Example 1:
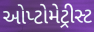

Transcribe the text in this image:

ઓપ્ટોમેટ્રીસ્ટ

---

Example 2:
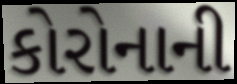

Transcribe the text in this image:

કોરોનાની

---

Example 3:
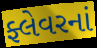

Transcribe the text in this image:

ફ્લેવરનાં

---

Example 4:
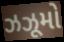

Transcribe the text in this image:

ઝઝૂમો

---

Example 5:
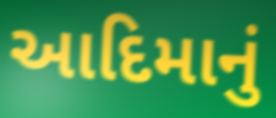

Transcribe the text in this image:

આદિમાનું